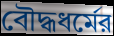
বৌদ্ধধর্মের